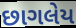
છાગલેય